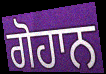
ਗੋਹਾਨ